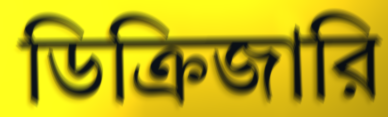
ডিক্রিজারি